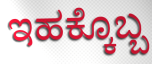
ಇಹಕ್ಕೊಬ್ಬ